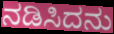
ನಡಿಸಿದನು